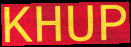
KHUP